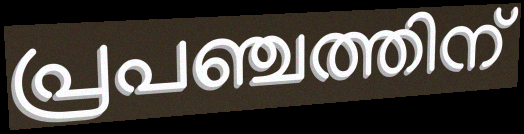
പ്രപഞ്ചത്തിന്